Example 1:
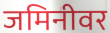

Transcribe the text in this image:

जमिनीवर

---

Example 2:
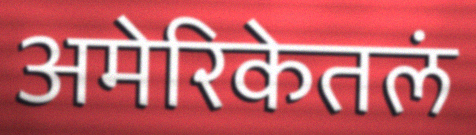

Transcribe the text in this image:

अमेरिकेतलं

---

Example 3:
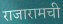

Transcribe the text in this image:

राजारामची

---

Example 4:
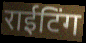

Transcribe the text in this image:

राईटिंग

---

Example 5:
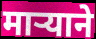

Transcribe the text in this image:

मार्‍याने